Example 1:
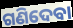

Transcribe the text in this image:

ଗଣିଦେବା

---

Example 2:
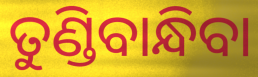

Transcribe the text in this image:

ତୁଣ୍ଡିବାନ୍ଧିବା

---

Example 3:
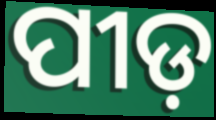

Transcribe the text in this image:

ପୀଡ଼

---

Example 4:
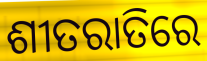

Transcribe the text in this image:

ଶୀତରାତିରେ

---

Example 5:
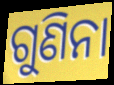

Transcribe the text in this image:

ଗୁଣିନା